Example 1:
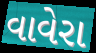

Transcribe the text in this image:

વાવેરા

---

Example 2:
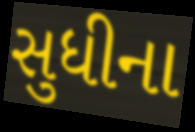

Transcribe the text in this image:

સુધીના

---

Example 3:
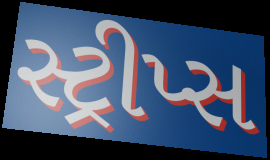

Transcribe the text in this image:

સ્ટ્રીપ્સ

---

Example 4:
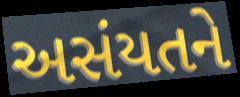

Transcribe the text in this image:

અસંયતને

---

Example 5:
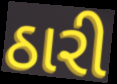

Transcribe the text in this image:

ઠારી